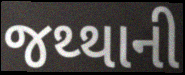
જથ્થાની